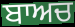
ਬਾਅਚ